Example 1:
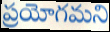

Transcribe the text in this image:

ప్రయోగమని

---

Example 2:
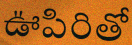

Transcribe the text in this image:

ఊపిరితో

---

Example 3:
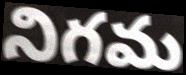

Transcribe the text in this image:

నిగమ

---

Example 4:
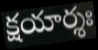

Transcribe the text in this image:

క్షయార్శః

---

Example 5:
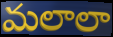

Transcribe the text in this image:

మలాలా